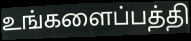
உங்களைப்பத்தி